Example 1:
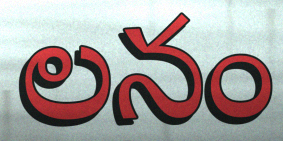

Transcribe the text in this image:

లనం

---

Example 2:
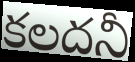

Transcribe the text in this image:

కలదనీ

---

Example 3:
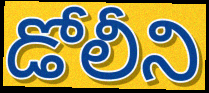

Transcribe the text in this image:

డోలీని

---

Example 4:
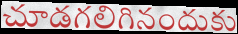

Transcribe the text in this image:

చూడగలిగినందుకు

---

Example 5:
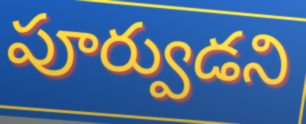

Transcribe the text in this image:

పూర్వుడని